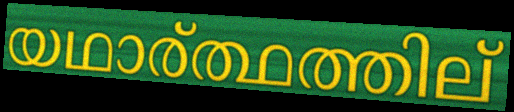
യഥാര്ത്ഥത്തില്